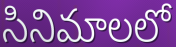
సినిమాలలో